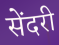
सेंदरी